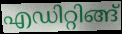
എഡിറ്റിങ്ങ്